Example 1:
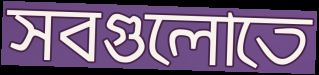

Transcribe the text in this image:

সবগুলোতে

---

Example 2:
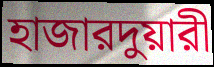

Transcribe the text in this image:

হাজারদুয়ারী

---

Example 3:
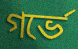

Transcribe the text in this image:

গর্ভে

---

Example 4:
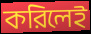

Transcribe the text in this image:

করিলেই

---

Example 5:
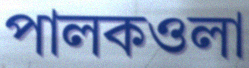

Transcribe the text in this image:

পালকওলা